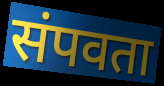
संपवता